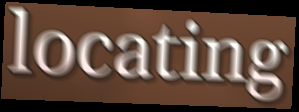
locating